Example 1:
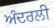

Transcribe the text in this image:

ਅੰਦਰਲੀ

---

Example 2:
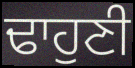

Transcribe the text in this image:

ਢਾਹੁਣੀ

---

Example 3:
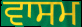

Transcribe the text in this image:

ਵਾਸਮ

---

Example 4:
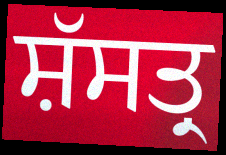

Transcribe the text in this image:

ਸ਼ੱਸਤ੍ਰ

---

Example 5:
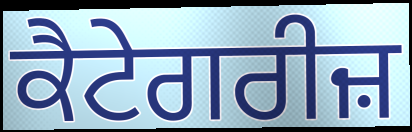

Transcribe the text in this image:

ਕੈਟੇਗਰੀਜ਼